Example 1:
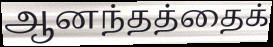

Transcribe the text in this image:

ஆனந்தத்தைக்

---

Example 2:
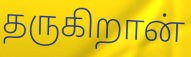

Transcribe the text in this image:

தருகிறான்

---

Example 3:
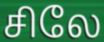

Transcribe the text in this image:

சிலே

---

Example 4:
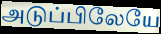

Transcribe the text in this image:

அடுப்பிலேயே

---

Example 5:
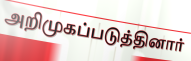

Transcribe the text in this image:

அறிமுகப்படுத்தினார்